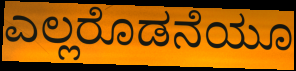
ಎಲ್ಲರೊಡನೆಯೂ